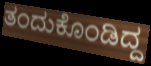
ತಂದುಕೊಂಡಿದ್ದ